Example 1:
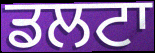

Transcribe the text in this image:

ਡਲਟਾ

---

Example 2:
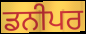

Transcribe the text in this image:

ਡਨੀਪਰ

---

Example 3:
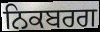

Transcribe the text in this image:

ਨਿਕਬਰਗ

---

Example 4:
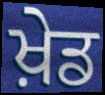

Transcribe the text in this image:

ਖ਼ੇਡ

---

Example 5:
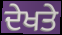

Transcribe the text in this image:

ਦੇਖਤੇ